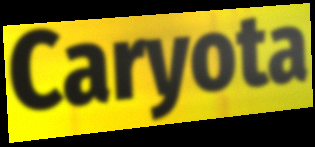
Caryota